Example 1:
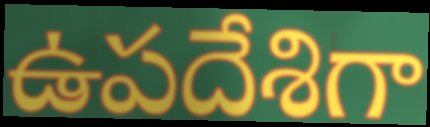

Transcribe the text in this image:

ఉపదేశిగా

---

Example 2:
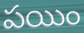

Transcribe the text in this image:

పయిం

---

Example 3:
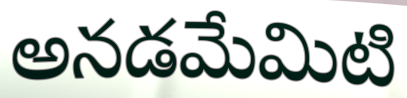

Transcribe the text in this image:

అనడమేమిటి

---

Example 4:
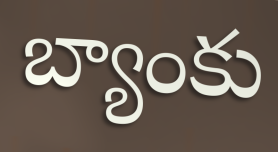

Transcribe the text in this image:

బ్యాంకు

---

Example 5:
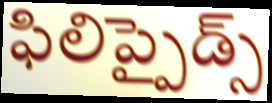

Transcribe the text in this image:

ఫిలిప్పైడ్స్